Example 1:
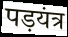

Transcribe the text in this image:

पड़यंत्र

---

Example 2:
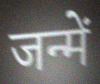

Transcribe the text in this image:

जन्में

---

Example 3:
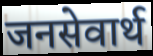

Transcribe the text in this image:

जनसेवार्थ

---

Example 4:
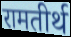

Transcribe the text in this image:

रामतीर्थ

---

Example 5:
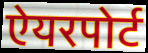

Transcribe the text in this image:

ऐयरपोर्ट